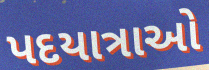
પદયાત્રાઓ